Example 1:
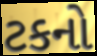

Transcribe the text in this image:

ટકનો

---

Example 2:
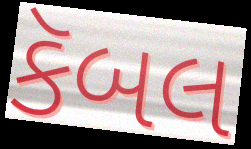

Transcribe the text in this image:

કૅબલ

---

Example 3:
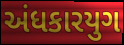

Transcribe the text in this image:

અંધકારયુગ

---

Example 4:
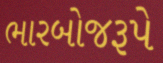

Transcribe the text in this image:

ભારબોજરૂપે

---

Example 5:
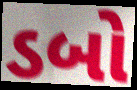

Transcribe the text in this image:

ડબો